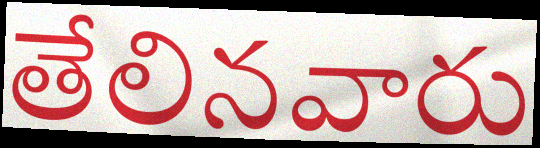
తేలినవారు